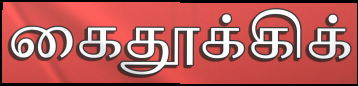
கைதூக்கிக்